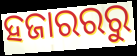
ହଜାରରରୁ